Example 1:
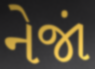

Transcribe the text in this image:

નેજાં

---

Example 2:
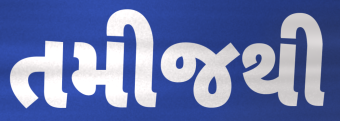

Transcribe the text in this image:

તમીજથી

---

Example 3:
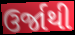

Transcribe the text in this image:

ઉર્જાથી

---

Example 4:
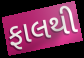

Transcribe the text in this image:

ફાલથી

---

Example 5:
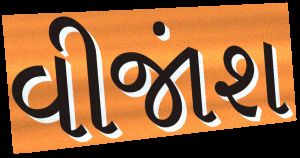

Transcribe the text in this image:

વીજાંશ